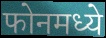
फोनमध्ये